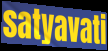
satyavati